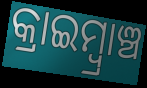
କ୍ରାଇମ୍ବ୍ରାଞ୍ଚ